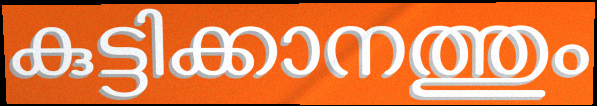
കുട്ടിക്കാനത്തും